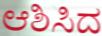
ಆಶಿಸಿದ